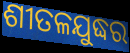
ଶୀତଳଯୁଦ୍ଧର